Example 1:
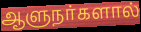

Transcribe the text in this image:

ஆளுநர்களால்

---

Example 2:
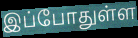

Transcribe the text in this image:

இப்போதுள்ள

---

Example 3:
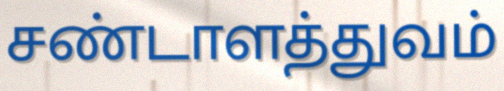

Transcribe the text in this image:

சண்டாளத்துவம்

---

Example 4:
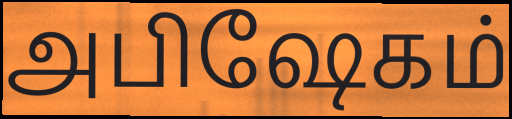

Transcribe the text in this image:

அபிஷேகம்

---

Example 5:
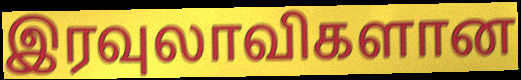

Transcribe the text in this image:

இரவுலாவிகளான